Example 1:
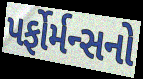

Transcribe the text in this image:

પર્ફોર્મન્સનો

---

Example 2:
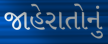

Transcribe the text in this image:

જાહેરાતોનું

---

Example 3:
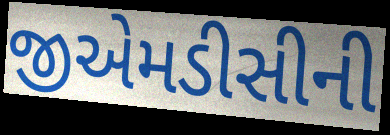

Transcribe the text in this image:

જીએમડીસીની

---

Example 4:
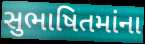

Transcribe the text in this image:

સુભાષિતમાંના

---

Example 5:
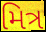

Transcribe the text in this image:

મિત્ર